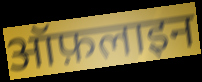
ऑफ़लाइन